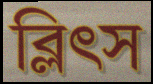
ব্লিৎস